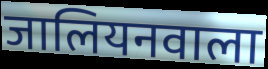
जालियनवाला